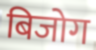
बिजोग